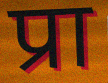
प्रा